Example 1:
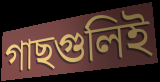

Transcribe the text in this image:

গাছগুলিই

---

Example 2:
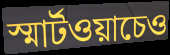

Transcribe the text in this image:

স্মার্টওয়াচেও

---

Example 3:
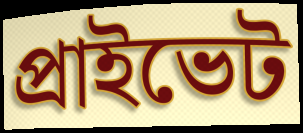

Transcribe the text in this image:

প্রাইভেট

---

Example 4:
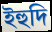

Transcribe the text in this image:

ইহুদি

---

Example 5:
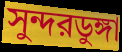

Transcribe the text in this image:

সুন্দরডুঙ্গা